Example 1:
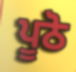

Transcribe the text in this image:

ਪੂਠੋ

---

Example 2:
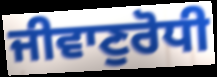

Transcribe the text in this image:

ਜੀਵਾਣੁਰੋਧੀ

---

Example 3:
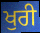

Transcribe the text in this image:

ਖੁਰੀ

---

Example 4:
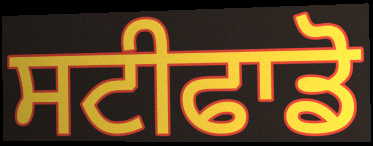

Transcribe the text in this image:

ਸਟੀਫਾਡੋ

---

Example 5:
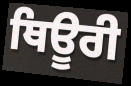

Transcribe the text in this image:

ਥਿਊਰੀ